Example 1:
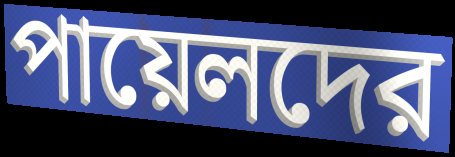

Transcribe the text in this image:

পায়েলদের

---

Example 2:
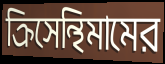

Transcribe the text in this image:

ক্রিসেন্থিমামের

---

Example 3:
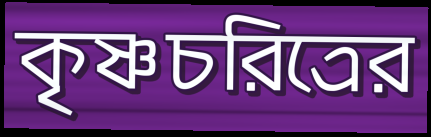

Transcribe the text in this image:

কৃষ্ণচরিত্রের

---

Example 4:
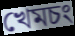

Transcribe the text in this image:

খেমচং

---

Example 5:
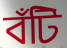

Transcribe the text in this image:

বঁটি